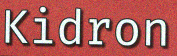
Kidron